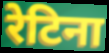
रेटिना